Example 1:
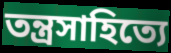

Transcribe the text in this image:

তন্ত্রসাহিত্যে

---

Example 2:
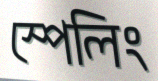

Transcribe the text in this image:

স্পেলিং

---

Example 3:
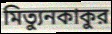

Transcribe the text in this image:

মিত্যুনকাকুর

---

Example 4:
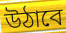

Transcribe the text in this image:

উঠাবে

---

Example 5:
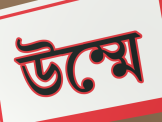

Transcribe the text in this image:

উম্মে